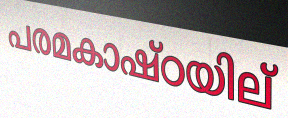
പരമകാഷ്ഠയില്